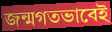
জন্মগতভাবেই